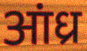
आंध्र